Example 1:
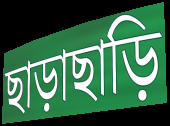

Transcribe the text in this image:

ছাড়াছাড়ি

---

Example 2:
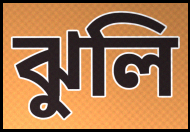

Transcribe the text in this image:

ঝুলি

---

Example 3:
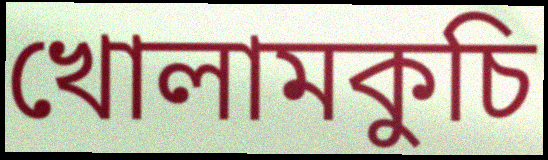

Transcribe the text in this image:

খোলামকুচি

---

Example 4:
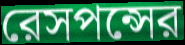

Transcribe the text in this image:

রেসপন্সের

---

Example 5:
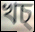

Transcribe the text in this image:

খচ্